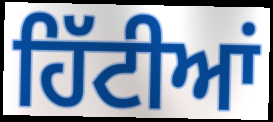
ਹਿੱਟੀਆਂ